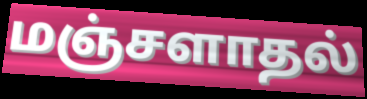
மஞ்சளாதல்